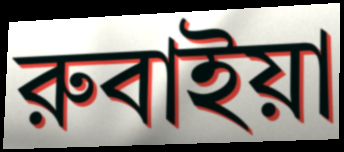
রুবাইয়া